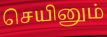
செயினும்